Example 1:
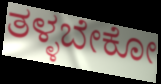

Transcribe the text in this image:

ತಳ್ಳಬೇಕೋ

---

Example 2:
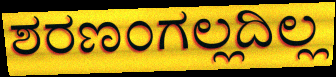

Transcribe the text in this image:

ಶರಣಂಗಲ್ಲದಿಲ್ಲ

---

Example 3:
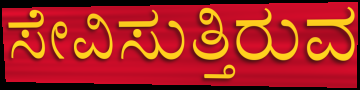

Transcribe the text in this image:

ಸೇವಿಸುತ್ತಿರುವ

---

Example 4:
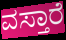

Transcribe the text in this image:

ವಸ್ತಾರೆ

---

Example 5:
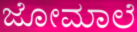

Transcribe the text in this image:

ಜೋಮಾಲೆ